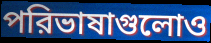
পরিভাষাগুলোও